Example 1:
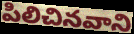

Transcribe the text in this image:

పిలిచినవాని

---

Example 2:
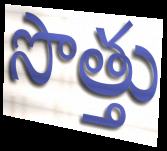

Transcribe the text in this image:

సొత్తు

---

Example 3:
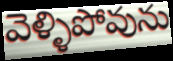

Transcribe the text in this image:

వెళ్ళిపోవును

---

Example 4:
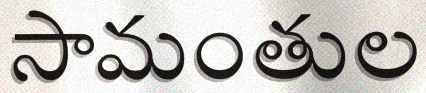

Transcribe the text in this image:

సామంతుల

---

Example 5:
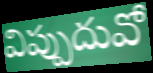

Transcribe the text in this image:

విప్పుదువో